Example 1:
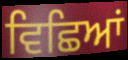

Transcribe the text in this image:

ਵਿਛਿਆਂ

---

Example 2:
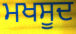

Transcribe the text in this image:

ਮਖਸੂਦ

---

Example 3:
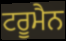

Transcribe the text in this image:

ਟਰੂਮੈਨ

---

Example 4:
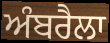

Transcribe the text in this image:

ਅੰਬਰੈਲਾ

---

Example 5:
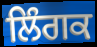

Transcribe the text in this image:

ਲਿੰਗਕ